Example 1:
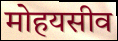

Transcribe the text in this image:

मोहयसीव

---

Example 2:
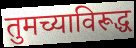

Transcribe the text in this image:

तुमच्याविरूद्ध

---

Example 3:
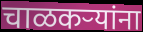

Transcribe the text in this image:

चाळकऱ्यांना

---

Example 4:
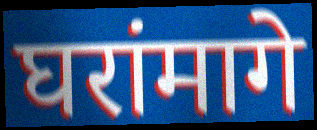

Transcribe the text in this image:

घरांमागे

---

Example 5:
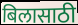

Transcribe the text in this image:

बिलासाठी